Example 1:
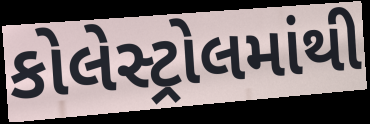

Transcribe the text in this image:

કોલેસ્ટ્રોલમાંથી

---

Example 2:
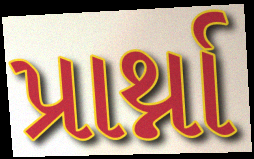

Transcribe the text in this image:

પ્રાર્થ્ના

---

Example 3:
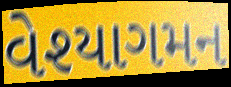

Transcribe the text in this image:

વેશ્યાગમન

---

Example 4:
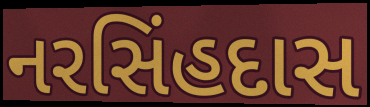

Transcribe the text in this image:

નરસિંહદાસ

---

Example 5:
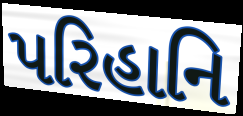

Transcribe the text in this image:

પરિહાનિ